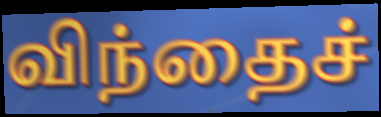
விந்தைச்